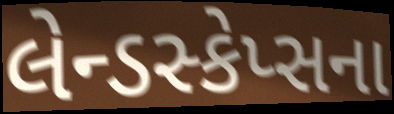
લેન્ડસ્કેપ્સના